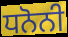
ਧਨੋਨੀ